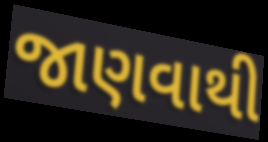
જાણવાથી